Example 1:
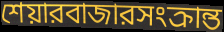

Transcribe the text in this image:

শেয়ারবাজারসংক্রান্ত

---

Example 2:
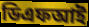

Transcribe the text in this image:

ডিএফআই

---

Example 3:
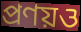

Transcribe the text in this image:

প্রণয়ও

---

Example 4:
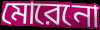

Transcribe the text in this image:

মোরেনো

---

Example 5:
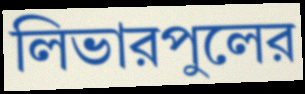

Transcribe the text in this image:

লিভারপুলের